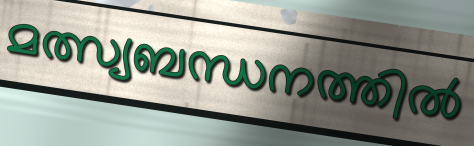
മത്സ്യബന്ധനത്തിൽ